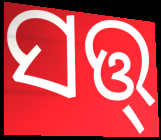
ସତ୍ତ୍